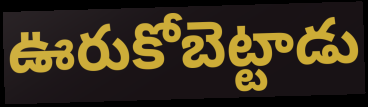
ఊరుకోబెట్టాడు